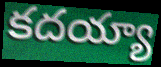
కదయ్యా